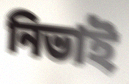
নিভাই